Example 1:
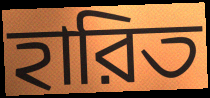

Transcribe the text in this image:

হারিত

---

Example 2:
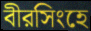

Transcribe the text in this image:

বীরসিংহে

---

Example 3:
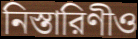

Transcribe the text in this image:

নিস্তারিণীও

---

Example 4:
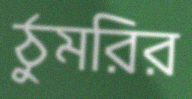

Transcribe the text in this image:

ঠুমরির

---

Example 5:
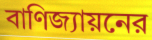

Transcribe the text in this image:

বাণিজ্যায়নের